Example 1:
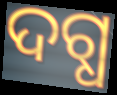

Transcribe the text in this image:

ଦଗ୍ଧ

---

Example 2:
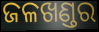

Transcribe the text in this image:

ଜଳଖଣ୍ଡର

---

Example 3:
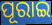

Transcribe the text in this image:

ପୂରାଇ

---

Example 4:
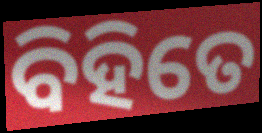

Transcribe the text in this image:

ବିହିତେ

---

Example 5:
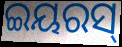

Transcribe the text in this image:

ଇୟରସ୍